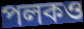
পলকও